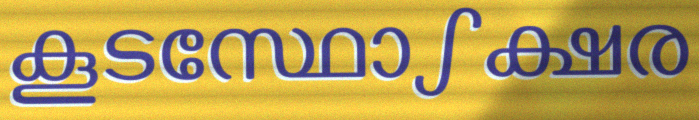
കൂടസ്ഥോഽക്ഷര